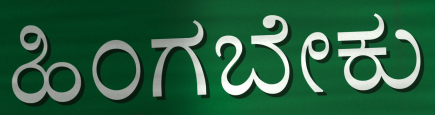
ಹಿಂಗಬೇಕು